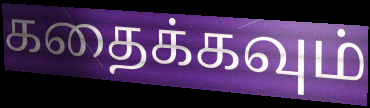
கதைக்கவும்